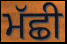
ਮੱਛੀ